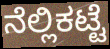
ನೆಲ್ಲಿಕಟ್ಟೆ